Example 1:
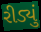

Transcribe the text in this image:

રીડ્યું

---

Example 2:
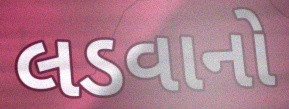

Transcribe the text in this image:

લડવાનો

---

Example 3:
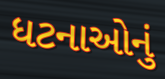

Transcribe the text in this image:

ધટનાઓનું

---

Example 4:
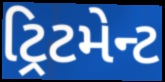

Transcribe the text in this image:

ટ્રિટમેન્ટ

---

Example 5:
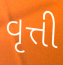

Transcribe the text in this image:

વૃત્તી